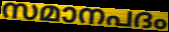
സമാനപദം